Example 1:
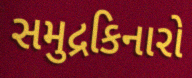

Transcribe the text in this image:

સમુદ્રકિનારો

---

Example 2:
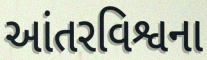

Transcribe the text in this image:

આંતરવિશ્વના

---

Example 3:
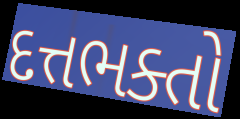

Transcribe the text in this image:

દત્તભક્તો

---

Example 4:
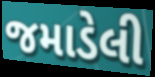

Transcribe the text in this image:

જમાડેલી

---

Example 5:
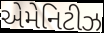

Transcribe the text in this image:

એમેનિટીઝ